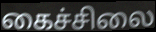
கைச்சிலை